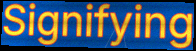
Signifying